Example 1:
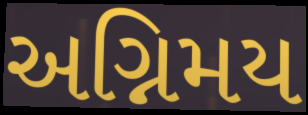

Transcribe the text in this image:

અગ્નિમય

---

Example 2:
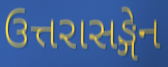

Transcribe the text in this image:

ઉત્તરાસઙ્ગેન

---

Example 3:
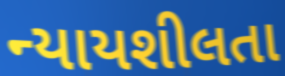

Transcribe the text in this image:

ન્યાયશીલતા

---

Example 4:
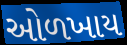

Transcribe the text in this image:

ઓળખાય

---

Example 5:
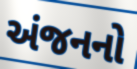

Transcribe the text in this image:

અંજનનો